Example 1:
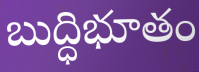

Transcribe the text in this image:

బుద్ధిభూతం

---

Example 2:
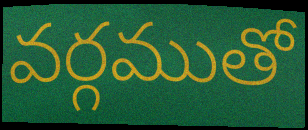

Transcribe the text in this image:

వర్గముతో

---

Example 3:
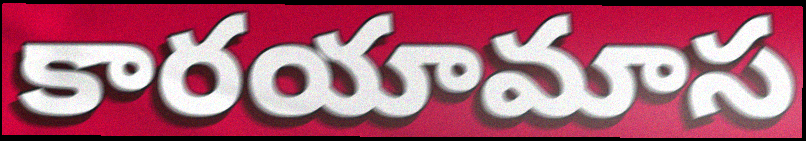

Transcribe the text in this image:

కారయామాస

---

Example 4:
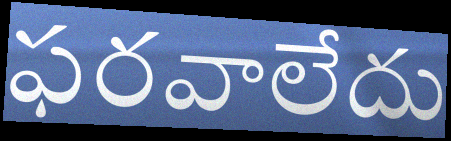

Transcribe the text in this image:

ఫరవాలేదు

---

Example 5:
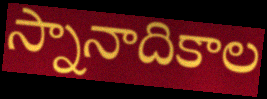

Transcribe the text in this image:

స్నానాదికాల